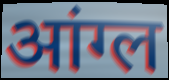
आंग्ल